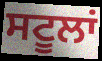
ਸਟੂਲਾਂ